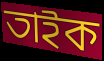
তাইক